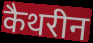
कैथरीन